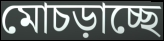
মোচড়াচ্ছে